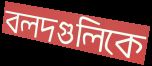
বলদগুলিকে